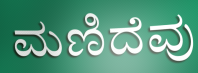
ಮಣಿದೆವು